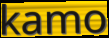
kamo